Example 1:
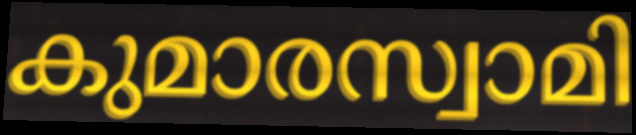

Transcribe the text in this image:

കുമാരസ്വാമി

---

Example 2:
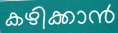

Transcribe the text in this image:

കഴിക്കാൻ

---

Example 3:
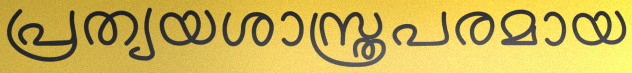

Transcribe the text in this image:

പ്രത്യയശാസ്ത്രപരമായ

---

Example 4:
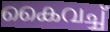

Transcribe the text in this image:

കൈവച്ച്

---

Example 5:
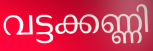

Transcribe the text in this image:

വട്ടക്കണ്ണി